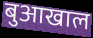
बुआखाल